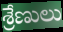
శ్రేణులు